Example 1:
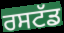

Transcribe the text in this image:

ਰਸਟੱਡ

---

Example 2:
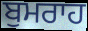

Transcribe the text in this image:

ਬੁਮਰਾਹ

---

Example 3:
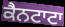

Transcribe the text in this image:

ਕੈਨਟਾਟਾ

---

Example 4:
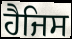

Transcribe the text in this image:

ਹੈਜਿਸ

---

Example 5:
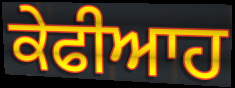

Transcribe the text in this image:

ਕੇਫੀਆਹ